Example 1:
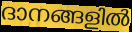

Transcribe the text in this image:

ദാനങ്ങളിൽ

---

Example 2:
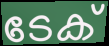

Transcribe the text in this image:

ടേക്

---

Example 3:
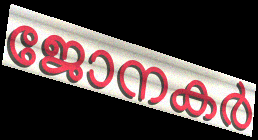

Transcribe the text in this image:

ജോനകർ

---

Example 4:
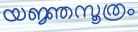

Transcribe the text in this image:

യജ്ഞസൂത്രം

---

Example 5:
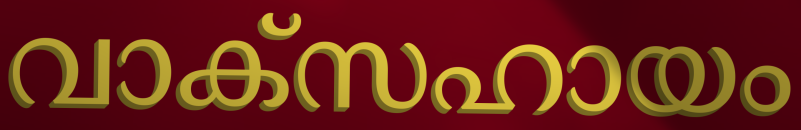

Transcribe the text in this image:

വാക്സഹായം